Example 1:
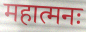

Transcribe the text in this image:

महात्मनः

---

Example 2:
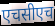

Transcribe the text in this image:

एचसीएच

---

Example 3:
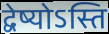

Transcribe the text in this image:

द्वेष्योऽस्ति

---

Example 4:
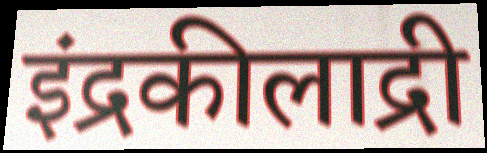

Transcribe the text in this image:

इंद्रकीलाद्री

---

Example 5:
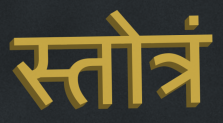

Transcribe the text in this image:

स्तोत्रं